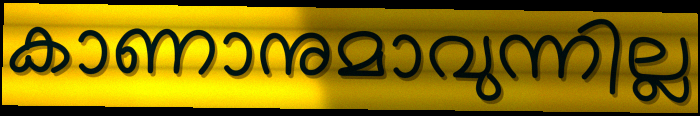
കാണാനുമാവുന്നില്ല